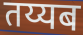
तय्यब